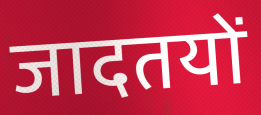
जादतयों